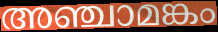
അഞ്ചാമങ്കം